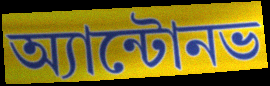
অ্যান্টোনভ